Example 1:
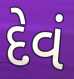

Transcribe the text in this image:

દેવં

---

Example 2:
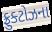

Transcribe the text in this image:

ફ્રુક્ટોઝના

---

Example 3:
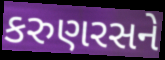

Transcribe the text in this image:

કરુણરસને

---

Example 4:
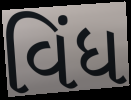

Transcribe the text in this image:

વિંધ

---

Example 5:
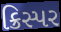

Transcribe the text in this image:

ક્રિસ્પર